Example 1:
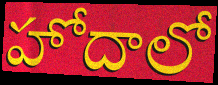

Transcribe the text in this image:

హోదాలో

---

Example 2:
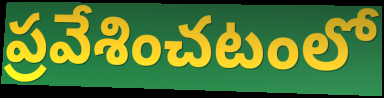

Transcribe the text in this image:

ప్రవేశించటంలో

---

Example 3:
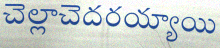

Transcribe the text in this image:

చెల్లాచెదరయ్యాయి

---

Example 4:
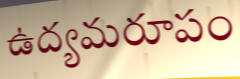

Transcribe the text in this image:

ఉద్యమరూపం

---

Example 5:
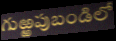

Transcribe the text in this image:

గుఱ్ఱపుబండిలో